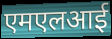
एमएलआई